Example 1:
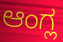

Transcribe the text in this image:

ಆಂಗ್ಲ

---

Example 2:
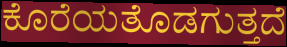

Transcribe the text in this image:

ಕೊರೆಯತೊಡಗುತ್ತದೆ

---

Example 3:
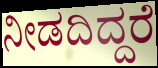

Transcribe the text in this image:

ನೀಡದಿದ್ದರೆ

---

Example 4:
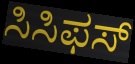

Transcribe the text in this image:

ಸಿಸಿಫಸ್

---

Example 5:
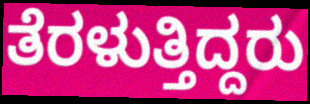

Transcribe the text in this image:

ತೆರಳುತ್ತಿದ್ದರು